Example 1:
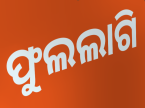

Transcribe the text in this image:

ଫୁଲଲାଗି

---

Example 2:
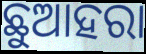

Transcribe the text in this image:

ଛୁଆହରା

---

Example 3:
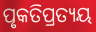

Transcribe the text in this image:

ପୃକତିପ୍ରତ୍ୟୟ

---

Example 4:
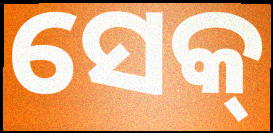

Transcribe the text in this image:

ସେକ୍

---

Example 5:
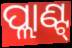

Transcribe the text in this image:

ପ୍ଲାଣ୍ଟ୍